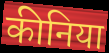
कीनिया